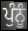
ਪੁੰਨੂੰ